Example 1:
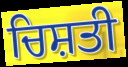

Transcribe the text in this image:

ਚਿਸ਼ਤੀ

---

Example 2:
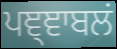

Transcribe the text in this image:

ਪਞ੍ਞਾਬਲਂ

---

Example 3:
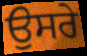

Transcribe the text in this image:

ਉਸਰੇ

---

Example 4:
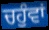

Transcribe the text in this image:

ਚਹੁੰਵਾਂ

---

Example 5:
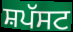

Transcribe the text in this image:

ਸ਼ਪੱਸਟ